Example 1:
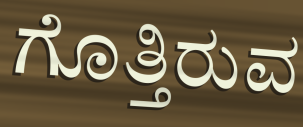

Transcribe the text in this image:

ಗೊತ್ತಿರುವ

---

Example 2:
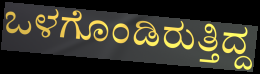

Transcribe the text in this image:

ಒಳಗೊಂಡಿರುತ್ತಿದ್ದ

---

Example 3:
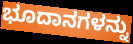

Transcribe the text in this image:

ಭೂದಾನಗಳನ್ನು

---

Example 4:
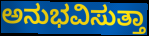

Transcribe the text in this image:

ಅನುಭವಿಸುತ್ತಾ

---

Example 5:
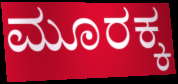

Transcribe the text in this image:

ಮೂರಕ್ಕ